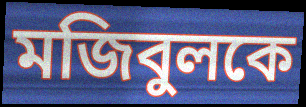
মজিবুলকে